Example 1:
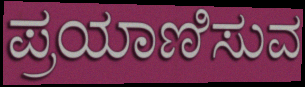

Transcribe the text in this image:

ಪ್ರಯಾಣಿಸುವ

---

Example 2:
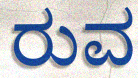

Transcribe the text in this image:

ರುವ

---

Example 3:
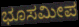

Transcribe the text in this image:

ಭೂಸಮೀಪ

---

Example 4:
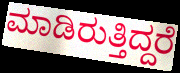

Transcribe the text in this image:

ಮಾಡಿರುತ್ತಿದ್ದರೆ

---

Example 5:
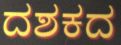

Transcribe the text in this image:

ದಶಕದ